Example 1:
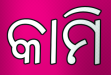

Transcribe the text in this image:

କାମି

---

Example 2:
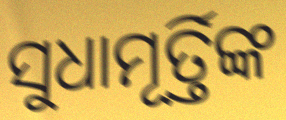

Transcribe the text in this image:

ସୁଧାମୂର୍ତ୍ତିଙ୍କ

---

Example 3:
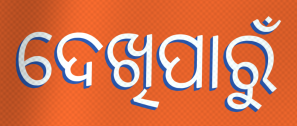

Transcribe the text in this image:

ଦେଖିପାରୁଁ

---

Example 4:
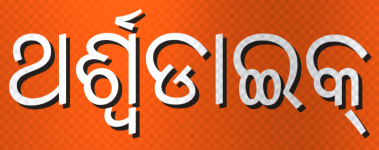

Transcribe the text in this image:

ଥର୍ଶ୍ଵଡାଇକ୍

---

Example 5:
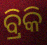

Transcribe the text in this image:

ବ୍ରିକି